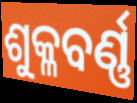
ଶୁକ୍ଳବର୍ଣ୍ଣ